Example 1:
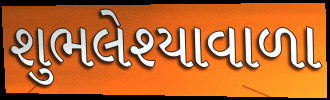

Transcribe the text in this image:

શુભલેશ્યાવાળા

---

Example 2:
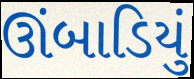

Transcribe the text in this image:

ઊંબાડિયું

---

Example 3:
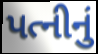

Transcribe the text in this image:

પત્નીનું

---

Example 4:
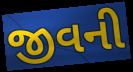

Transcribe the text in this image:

જીવની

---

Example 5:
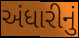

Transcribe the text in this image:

અંધારીનું